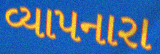
વ્યાપનારા